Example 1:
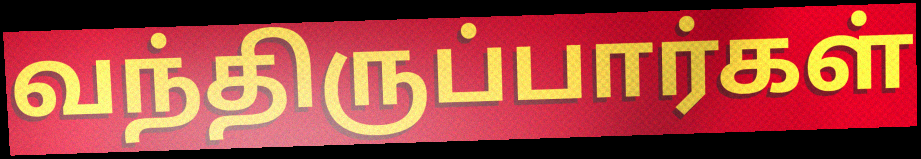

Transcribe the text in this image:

வந்திருப்பார்கள்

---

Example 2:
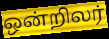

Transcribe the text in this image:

ஒன்றிலர்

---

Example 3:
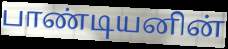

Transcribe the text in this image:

பாண்டியனின்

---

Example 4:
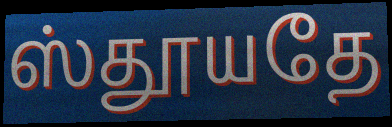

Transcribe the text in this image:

ஸ்தூயதே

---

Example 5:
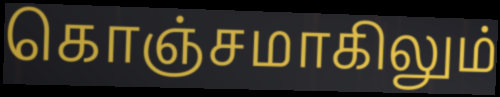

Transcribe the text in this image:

கொஞ்சமாகிலும்